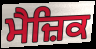
ਮੈਜ਼ਿਕ